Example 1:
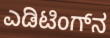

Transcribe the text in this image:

ಎಡಿಟಿಂಗ್‌ನ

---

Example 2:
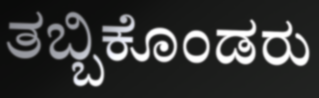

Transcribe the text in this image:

ತಬ್ಬಿಕೊಂಡರು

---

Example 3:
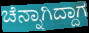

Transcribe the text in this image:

ಚೆನ್ನಾಗಿದ್ದಾಗ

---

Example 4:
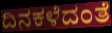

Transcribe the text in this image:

ದಿನಕಳೆದಂತೆ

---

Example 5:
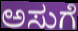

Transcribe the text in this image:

ಅಸುಗೆ